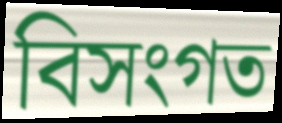
বিসংগত